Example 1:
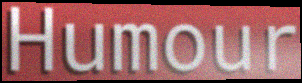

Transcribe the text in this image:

Humour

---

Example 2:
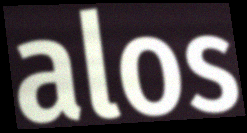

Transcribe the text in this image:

alos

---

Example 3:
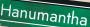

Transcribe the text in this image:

Hanumantha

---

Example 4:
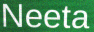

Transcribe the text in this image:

Neeta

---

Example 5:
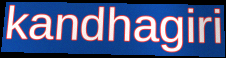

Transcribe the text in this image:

kandhagiri